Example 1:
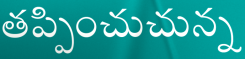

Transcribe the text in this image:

తప్పించుచున్న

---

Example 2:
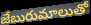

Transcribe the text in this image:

జేబురుమాలుతో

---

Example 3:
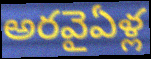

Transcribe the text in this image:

అరవైఏళ్ల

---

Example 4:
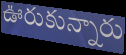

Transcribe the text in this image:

ఊరుకున్నారు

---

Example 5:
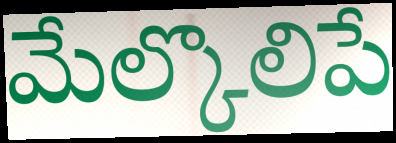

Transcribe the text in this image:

మేల్కొలిపే